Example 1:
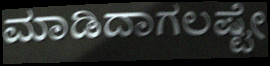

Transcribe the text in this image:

ಮಾಡಿದಾಗಲಷ್ಟೇ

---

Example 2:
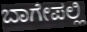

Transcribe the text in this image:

ಬಾಗೇಪಲ್ಲಿ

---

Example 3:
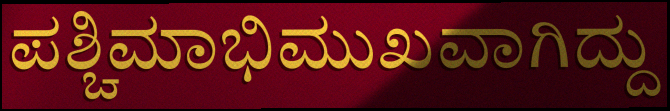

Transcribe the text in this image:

ಪಶ್ಚಿಮಾಭಿಮುಖವಾಗಿದ್ದು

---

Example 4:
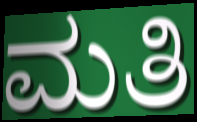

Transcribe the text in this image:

ಮತಿ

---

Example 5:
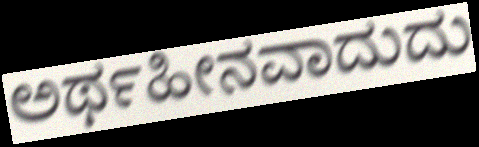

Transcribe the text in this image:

ಅರ್ಥಹೀನವಾದುದು